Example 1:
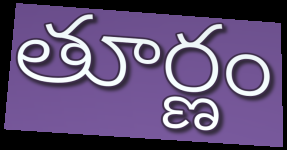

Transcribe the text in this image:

తూర్ణం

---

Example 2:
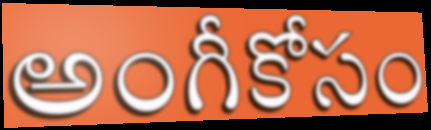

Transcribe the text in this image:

అంగీకోసం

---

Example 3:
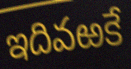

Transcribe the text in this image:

ఇదివఱకే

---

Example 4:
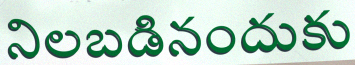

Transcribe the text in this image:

నిలబడినందుకు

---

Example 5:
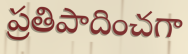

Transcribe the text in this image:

ప్రతిపాదించగా